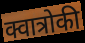
क्वात्रोकी